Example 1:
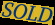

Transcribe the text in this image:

SOLD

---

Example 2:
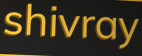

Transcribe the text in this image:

shivray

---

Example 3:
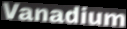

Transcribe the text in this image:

Vanadium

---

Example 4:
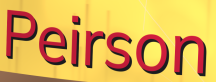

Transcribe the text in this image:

Peirson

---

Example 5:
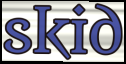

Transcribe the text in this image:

skid